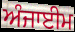
ਅੰਜਾਈਮ